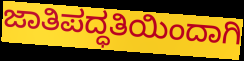
ಜಾತಿಪದ್ಧತಿಯಿಂದಾಗಿ